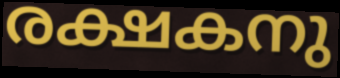
രക്ഷകനു